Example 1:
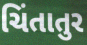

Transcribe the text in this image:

ચિંતાતુર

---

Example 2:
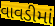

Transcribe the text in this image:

વાવડીમાં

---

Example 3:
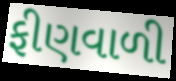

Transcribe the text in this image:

ફીણવાળી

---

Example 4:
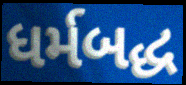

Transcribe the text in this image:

ધર્મબદ્ધ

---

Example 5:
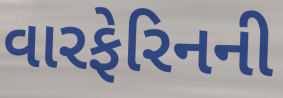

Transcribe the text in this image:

વારફેરિનની